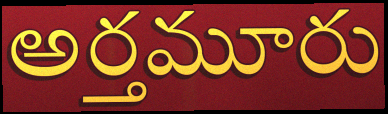
అర్తమూరు